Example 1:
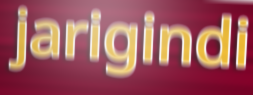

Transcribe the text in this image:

jarigindi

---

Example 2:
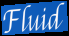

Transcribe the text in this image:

Fluid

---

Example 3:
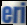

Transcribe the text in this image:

eri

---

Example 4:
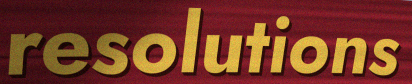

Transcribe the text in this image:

resolutions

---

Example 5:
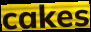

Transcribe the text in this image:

cakes